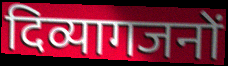
दिव्यागजनों